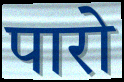
पारो